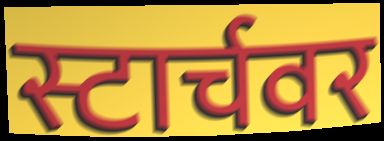
स्टार्चवर